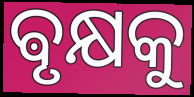
ଵୃକ୍ଷକୁ